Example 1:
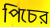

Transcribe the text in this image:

পিচের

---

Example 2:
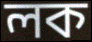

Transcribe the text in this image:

লক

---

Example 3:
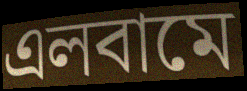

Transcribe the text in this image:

এলবামে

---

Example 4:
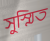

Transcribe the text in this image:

সুস্মিত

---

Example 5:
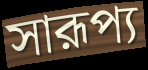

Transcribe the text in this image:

সারূপ্য